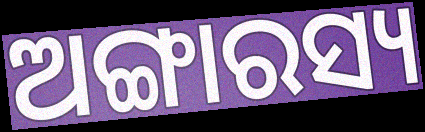
ଅଙ୍ଗାରସ୍ୟ